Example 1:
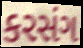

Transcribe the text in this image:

કરસંગ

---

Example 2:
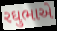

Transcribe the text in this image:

રઘુભાએ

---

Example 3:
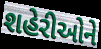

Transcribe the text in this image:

શહેરીઓને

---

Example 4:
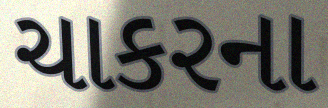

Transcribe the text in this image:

ચાકરના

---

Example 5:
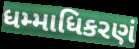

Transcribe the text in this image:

ધમ્માધિકરણં